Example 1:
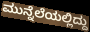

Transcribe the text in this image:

ಮುನ್ನೆಲೆಯಲ್ಲಿದ್ದು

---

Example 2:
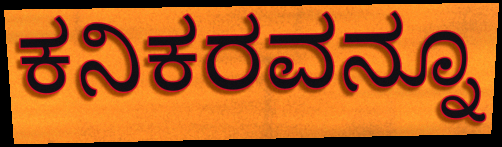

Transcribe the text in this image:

ಕನಿಕರವನ್ನೂ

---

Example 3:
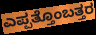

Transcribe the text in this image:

ಎಪ್ಪತ್ತೊಂಬತ್ತರ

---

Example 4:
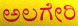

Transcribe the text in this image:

ಅಲಗೇರಿ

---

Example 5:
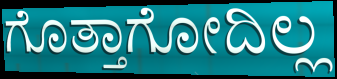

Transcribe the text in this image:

ಗೊತ್ತಾಗೋದಿಲ್ಲ